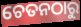
ଚେତନଠାରୁ